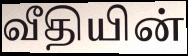
வீதியின்